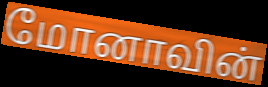
மோனாவின்